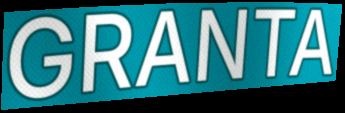
GRANTA